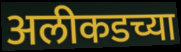
अलीकडच्या